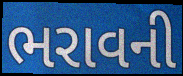
ભરાવની